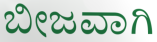
ಬೀಜವಾಗಿ